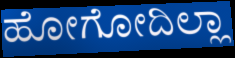
ಹೋಗೋದಿಲ್ಲಾ